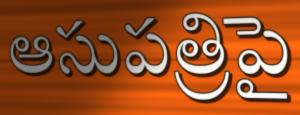
ఆసుపత్రిపై